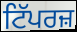
ਟਿੱਪਰਜ਼